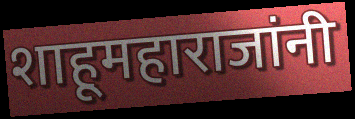
शाहूमहाराजांनी